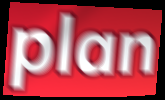
plan